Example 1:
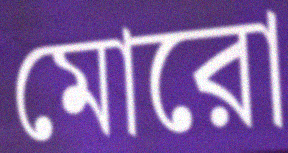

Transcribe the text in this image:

মোরো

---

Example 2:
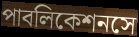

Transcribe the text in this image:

পাবলিকেশনসে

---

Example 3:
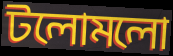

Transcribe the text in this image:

টলোমলো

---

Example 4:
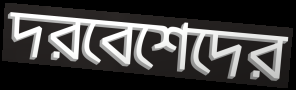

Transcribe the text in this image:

দরবেশেদের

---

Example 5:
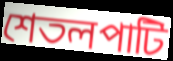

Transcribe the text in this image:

শেতলপাটি